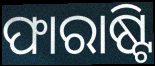
ଫାରାଷ୍ଟି